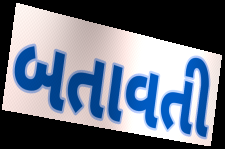
બતાવતી